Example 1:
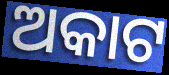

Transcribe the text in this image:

ଅକାଟ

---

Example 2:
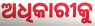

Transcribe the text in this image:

ଅଧିକାରୀକୁ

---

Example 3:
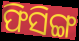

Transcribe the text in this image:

ଫିସିଙ୍ଗ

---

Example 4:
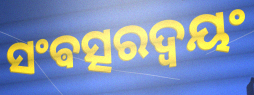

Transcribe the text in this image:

ସଂଵତ୍ସରଦ୍ଵୟଂ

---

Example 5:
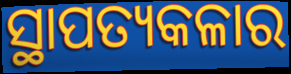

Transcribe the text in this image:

ସ୍ଥାପତ୍ୟକଳାର